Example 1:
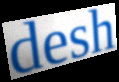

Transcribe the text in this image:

desh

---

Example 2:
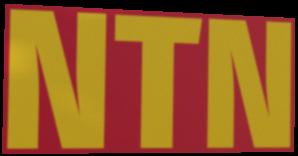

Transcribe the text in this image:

NTN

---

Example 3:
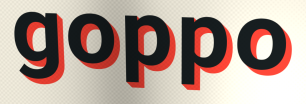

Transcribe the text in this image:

goppo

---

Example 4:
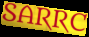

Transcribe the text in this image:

SARRC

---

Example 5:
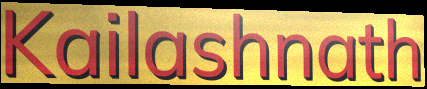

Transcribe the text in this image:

Kailashnath